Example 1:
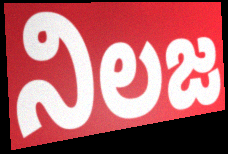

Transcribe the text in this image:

నిలజ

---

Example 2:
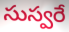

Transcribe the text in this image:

సుస్వరే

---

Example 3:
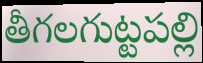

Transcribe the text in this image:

తీగలగుట్టపల్లి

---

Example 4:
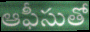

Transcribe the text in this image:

ఆఫీసుతో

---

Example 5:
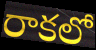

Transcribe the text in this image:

రాకలో